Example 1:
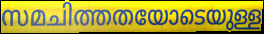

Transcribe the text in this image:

സമചിത്തതയോടെയുള്ള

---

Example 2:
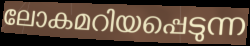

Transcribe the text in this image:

ലോകമറിയപ്പെടുന്ന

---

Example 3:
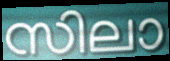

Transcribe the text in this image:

സിലാ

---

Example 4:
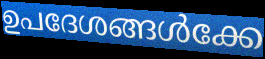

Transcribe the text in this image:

ഉപദേശങ്ങൾക്കേ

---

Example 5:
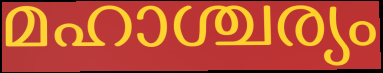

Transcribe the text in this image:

മഹാശ്ചര്യം